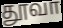
தூவா